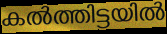
കൽത്തിട്ടയിൽ